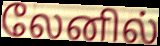
லேனில்